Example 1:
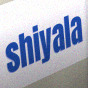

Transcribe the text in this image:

shiyala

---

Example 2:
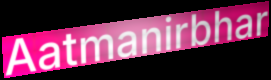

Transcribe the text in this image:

Aatmanirbhar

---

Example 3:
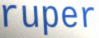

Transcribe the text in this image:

ruper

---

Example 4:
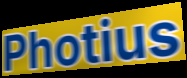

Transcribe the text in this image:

Photius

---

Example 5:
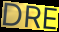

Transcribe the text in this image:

DRE